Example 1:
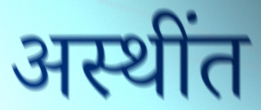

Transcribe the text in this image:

अस्थींत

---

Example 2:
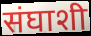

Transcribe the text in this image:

संघाशी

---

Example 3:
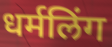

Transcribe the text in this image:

धर्मलिंग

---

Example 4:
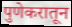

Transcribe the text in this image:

पुणेकरातून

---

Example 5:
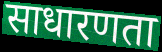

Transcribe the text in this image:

साधारणता